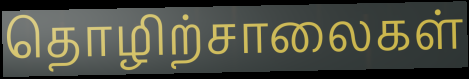
தொழிற்சாலைகள்